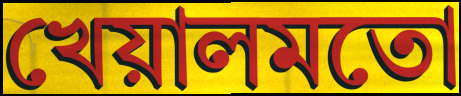
খেয়ালমতো